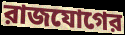
রাজযোগের